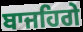
ਬਾਜਹਿਗੇ